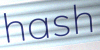
hash